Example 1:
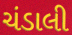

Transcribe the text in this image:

ચંડાલી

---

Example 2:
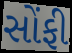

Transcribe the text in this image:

સોંફી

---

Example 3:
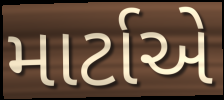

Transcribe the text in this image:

માર્ટાએ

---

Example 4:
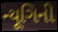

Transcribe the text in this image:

ન્યૂગિની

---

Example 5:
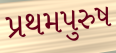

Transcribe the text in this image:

પ્રથમપુરુષ